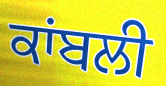
ਕਾਂਬਲੀ